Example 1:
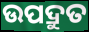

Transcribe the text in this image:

ଉପଦ୍ରୁତ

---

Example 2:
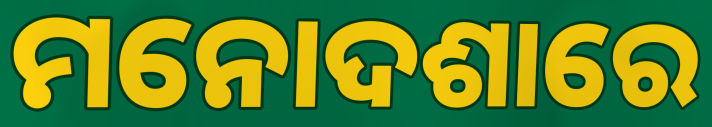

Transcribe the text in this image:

ମନୋଦଶାରେ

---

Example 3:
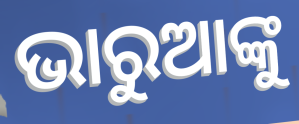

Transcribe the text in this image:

ଭାରୁଆଙ୍କୁ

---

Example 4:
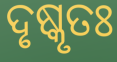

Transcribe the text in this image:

ଦୃଷ୍କୃତଃ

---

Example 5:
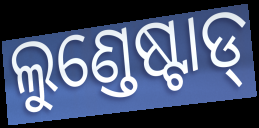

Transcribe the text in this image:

ଲୁଣ୍ଡେଷ୍ଟାଡ୍